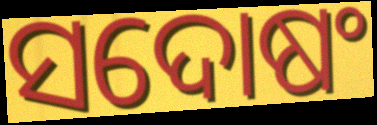
ସଦୋଷଂ